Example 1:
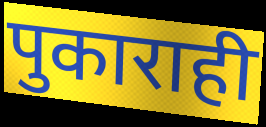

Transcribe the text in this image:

पुकाराही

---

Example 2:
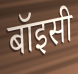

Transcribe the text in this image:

बॉइसी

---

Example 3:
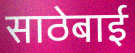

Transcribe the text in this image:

साठेबाई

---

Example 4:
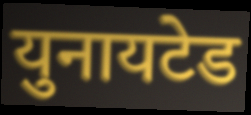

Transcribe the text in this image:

युनायटेड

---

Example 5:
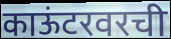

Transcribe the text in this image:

काऊंटरवरची